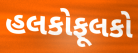
હલકોફૂલકો